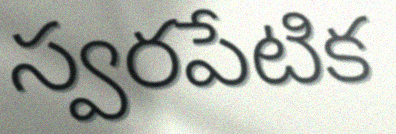
స్వరపేటిక